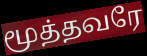
மூத்தவரே